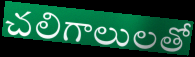
చలిగాలులతో